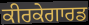
ਕੀਰਕੇਗਾਰਡ